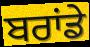
ਬਰਾਂਡੇ